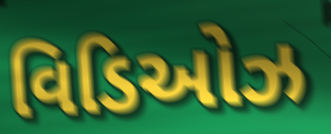
વિડિઓઝ